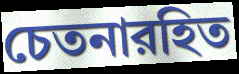
চেতনারহিত